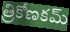
త్రికోణకమ్